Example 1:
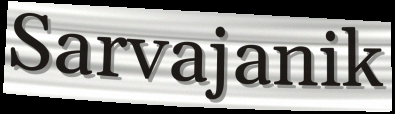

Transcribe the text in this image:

Sarvajanik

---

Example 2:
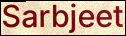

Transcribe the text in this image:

Sarbjeet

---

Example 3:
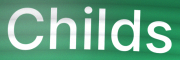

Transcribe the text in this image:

Childs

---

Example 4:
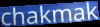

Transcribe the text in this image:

chakmak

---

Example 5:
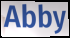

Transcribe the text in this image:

Abby